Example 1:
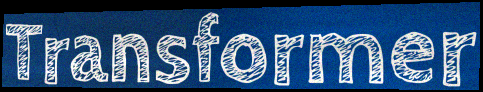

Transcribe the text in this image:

Transformer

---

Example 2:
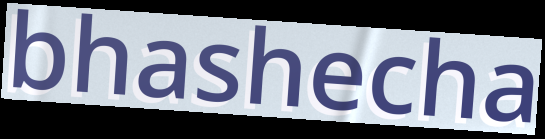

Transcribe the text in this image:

bhashecha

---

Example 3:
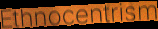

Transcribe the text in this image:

Ethnocentrism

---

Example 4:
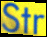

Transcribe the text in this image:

Str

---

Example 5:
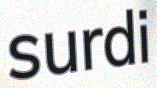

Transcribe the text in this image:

surdi